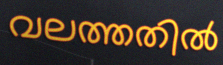
വലത്തതിൽ